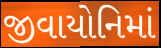
જીવાયોનિમાં